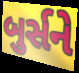
બુર્સને